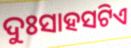
ଦୁଃସାହସଟିଏ